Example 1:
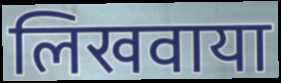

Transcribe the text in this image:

लिखवाया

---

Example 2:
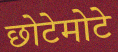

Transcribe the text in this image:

छोटेमोटे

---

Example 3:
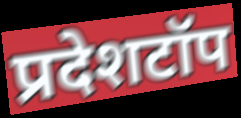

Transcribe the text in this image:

प्रदेशटॉप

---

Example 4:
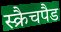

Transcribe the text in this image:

स्क्रैचपैड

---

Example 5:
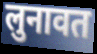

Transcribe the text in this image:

लुनावत